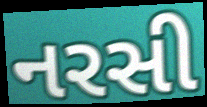
નરસી